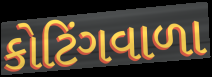
કોટિંગવાળા